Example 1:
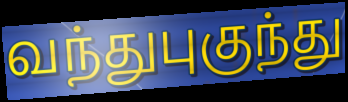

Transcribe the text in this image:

வந்துபுகுந்து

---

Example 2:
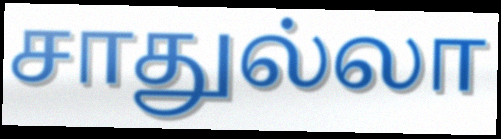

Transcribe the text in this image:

சாதுல்லா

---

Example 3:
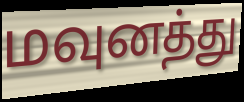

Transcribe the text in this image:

மவுனத்து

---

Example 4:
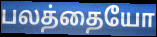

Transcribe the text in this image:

பலத்தையோ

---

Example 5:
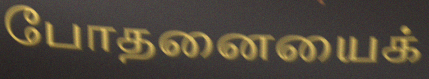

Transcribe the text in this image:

போதனையைக்